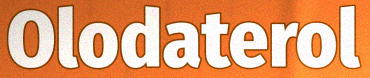
Olodaterol